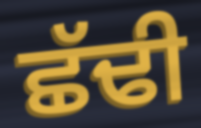
ਛੱਢੀ